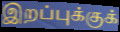
இறப்புக்குக்